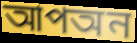
আপঅন